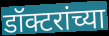
डॉक्टरांच्या